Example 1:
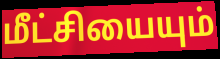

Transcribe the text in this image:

மீட்சியையும்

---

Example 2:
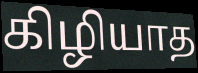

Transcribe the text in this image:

கிழியாத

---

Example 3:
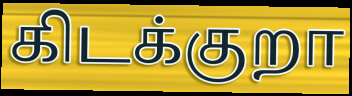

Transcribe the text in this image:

கிடக்குறா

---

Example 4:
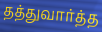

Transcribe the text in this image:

தத்துவார்த்த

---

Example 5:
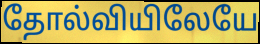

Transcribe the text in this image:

தோல்வியிலேயே